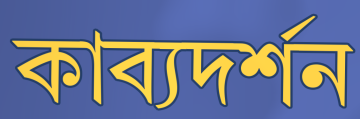
কাব্যদর্শন